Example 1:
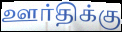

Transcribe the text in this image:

ஊர்திக்கு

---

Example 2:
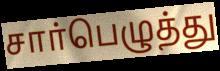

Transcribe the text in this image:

சார்பெழுத்து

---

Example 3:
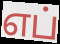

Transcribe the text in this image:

எப்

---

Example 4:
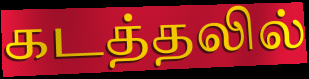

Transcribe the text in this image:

கடத்தலில்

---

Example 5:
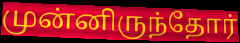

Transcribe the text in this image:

முன்னிருந்தோர்